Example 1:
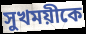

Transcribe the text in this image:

সুখময়ীকে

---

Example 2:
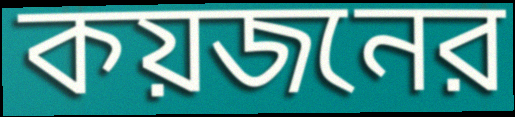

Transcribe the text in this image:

কয়জনের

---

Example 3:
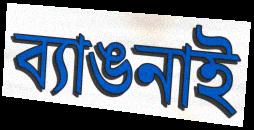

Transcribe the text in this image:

ব্যাঙনাই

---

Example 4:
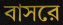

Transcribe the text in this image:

বাসরে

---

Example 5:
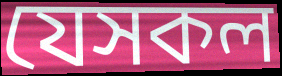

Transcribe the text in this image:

যেসকল